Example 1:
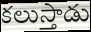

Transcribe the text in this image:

కలుస్తాడు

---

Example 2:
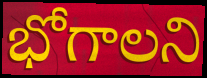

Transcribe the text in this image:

భోగాలని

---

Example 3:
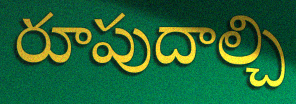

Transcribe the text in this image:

రూపుదాల్చి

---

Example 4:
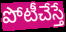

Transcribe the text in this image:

పోటీచేస్తే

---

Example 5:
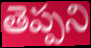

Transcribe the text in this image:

తెప్పని